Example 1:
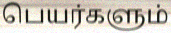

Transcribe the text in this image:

பெயர்களும்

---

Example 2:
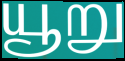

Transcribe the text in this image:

யூறு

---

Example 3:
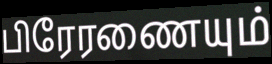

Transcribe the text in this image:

பிரேரணையும்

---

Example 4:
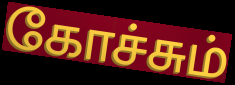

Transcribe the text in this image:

கோச்சும்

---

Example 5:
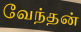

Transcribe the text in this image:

வேந்தன்